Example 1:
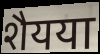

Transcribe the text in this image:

शैयया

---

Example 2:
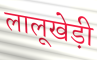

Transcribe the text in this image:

लालूखेड़ी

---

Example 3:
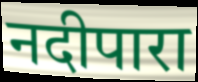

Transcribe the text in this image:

नदीपारा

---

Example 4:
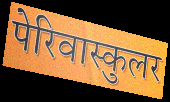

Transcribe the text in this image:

पेरिवास्कुलर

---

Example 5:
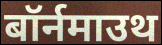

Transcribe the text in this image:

बॉर्नमाउथ